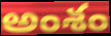
అంశం